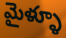
మైళ్ళూ